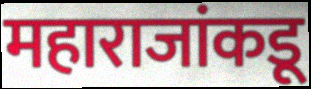
महाराजांकडू